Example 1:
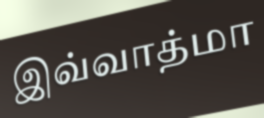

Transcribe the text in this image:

இவ்வாத்மா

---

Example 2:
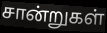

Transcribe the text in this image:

சான்றுகள்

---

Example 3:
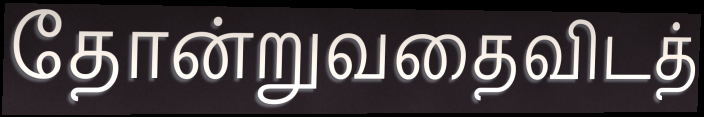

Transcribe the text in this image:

தோன்றுவதைவிடத்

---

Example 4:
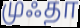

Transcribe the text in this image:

முஃதா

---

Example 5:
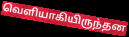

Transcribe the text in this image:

வெளியாகியிருந்தன